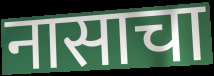
नासाचा